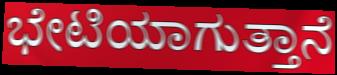
ಭೇಟಿಯಾಗುತ್ತಾನೆ